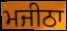
ਮਜੀਠਾ